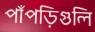
পাঁপড়িগুলি